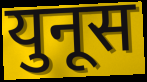
युनूस